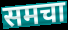
समचा